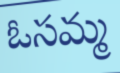
ఓసమ్మ